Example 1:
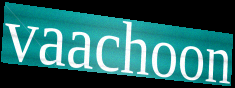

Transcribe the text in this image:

vaachoon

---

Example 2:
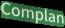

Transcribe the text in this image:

Complan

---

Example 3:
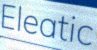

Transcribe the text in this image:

Eleatic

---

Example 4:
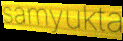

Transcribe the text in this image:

samyukta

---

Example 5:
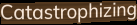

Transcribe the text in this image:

Catastrophizing